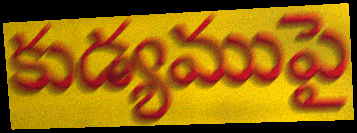
కుడ్యముపై